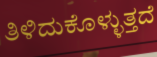
ತಿಳಿದುಕೊಳ್ಳುತ್ತದೆ